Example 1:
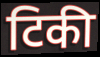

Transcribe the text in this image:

टिकी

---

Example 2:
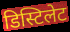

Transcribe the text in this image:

डिस्टिलेट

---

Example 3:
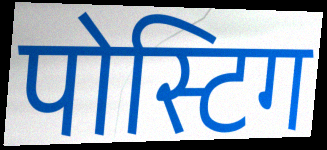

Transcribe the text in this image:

पोस्टिग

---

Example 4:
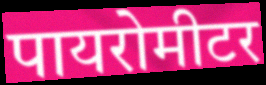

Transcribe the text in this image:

पायरोमीटर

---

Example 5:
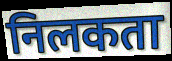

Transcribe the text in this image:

निलकता